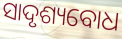
ସାଦୃଶ୍ୟବୋଧ